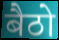
बैठो